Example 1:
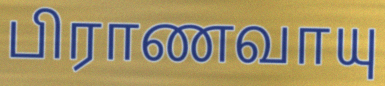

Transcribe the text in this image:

பிராணவாயு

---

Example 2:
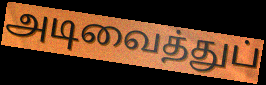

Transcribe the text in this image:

அடிவைத்துப்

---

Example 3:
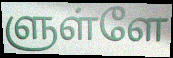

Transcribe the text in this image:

ளுள்ளே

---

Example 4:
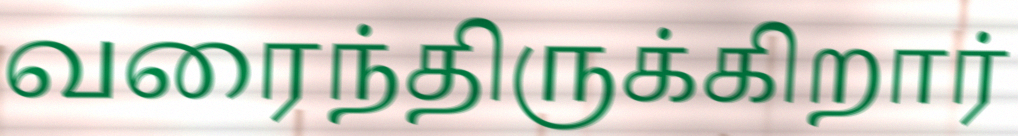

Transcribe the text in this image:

வரைந்திருக்கிறார்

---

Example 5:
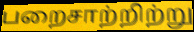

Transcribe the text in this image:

பறைசாற்றிற்று